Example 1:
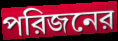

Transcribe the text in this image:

পরিজনের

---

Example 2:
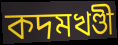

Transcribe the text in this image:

কদমখণ্ডী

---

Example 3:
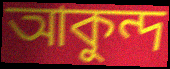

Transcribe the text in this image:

আকুন্দ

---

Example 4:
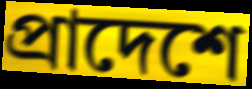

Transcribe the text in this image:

প্রাদেশে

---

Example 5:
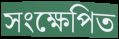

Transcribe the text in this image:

সংক্ষেপিত